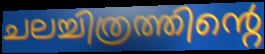
ചലച്ചിത്രത്തിന്റെ